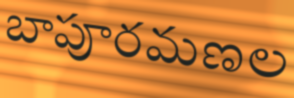
బాపూరమణల